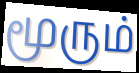
மூரும்